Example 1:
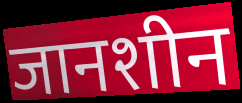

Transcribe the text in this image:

जानशीन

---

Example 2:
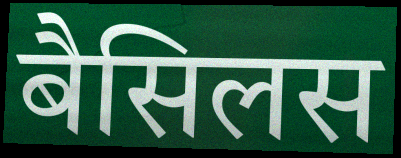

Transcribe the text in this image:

बैसिलस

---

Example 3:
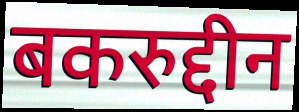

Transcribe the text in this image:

बकरुद्दीन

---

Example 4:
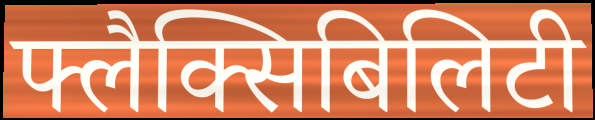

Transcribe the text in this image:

फ्लैक्सिबिलिटी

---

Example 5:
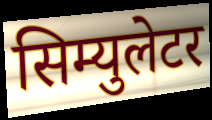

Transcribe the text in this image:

सिम्युलेटर